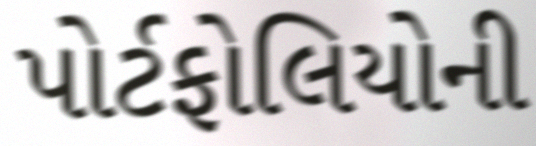
પોર્ટફોલિયોની